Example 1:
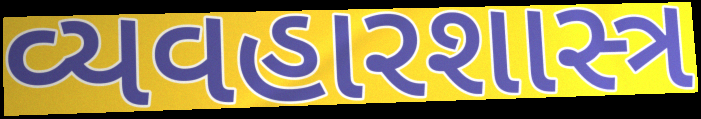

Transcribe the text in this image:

વ્યવહારશાસ્ત્ર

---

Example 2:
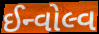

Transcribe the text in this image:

ઈન્વોલ્વ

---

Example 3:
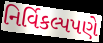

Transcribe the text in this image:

નિર્વિકલ્પપણે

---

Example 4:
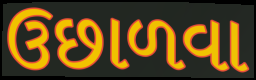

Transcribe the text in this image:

ઉછાળવા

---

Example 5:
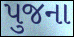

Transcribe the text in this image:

પુજના